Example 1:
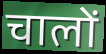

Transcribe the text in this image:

चालों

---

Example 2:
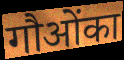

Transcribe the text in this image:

गौओंका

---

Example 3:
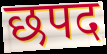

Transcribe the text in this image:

छपद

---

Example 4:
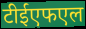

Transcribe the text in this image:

टीईएफएल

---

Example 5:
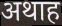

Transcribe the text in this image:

अथाह